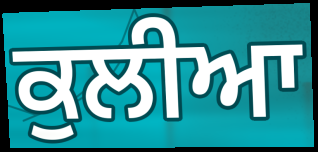
ਕੁਲੀਆ